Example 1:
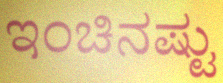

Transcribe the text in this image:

ಇಂಚಿನಷ್ಟು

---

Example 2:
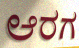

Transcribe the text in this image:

ಆರಗ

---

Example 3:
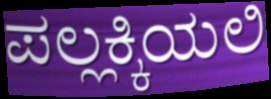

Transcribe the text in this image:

ಪಲ್ಲಕ್ಕಿಯಲಿ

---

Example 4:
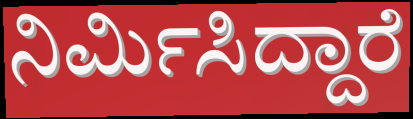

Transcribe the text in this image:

ನಿರ್ಮಿಸಿದ್ದಾರೆ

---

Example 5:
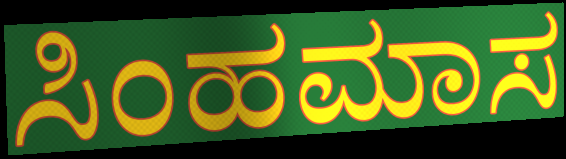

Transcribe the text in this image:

ಸಿಂಹಮಾಸ